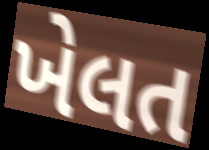
ખેલત